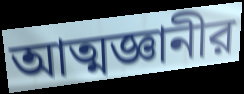
আত্মজ্ঞানীর